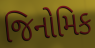
જિનોમિક